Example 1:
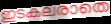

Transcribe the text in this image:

ഇടകലരാതെ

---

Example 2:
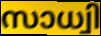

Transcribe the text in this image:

സാധ്വി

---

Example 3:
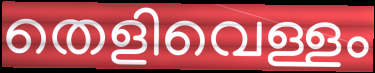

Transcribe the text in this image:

തെളിവെള്ളം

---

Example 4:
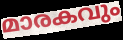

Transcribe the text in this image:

മാരകവും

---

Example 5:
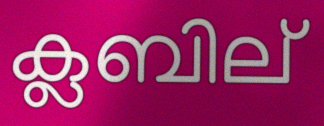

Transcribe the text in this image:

ക്ലബില്